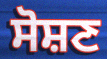
ਸੋਸ਼ਣ